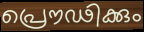
പ്രൌഢിക്കും